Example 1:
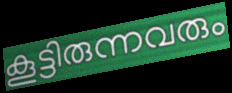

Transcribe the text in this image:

കൂട്ടിരുന്നവരും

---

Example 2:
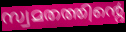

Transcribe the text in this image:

സ്വമതത്തിന്റെ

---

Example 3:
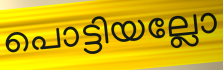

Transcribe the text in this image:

പൊട്ടിയല്ലോ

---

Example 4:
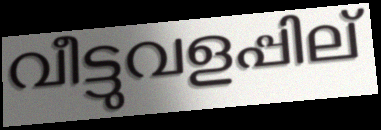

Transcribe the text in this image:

വീട്ടുവളപ്പില്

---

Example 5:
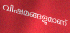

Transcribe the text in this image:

വിഷമങ്ങളുമാണ്